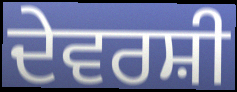
ਦੇਵਰਸ਼ੀ